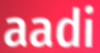
aadi